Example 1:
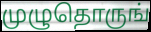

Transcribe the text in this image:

முழுதொருங்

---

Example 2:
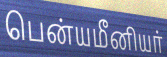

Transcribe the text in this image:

பென்யமீனியர்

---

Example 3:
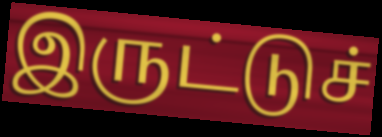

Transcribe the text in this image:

இருட்டுச்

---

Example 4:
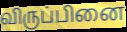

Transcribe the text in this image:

விருப்பினை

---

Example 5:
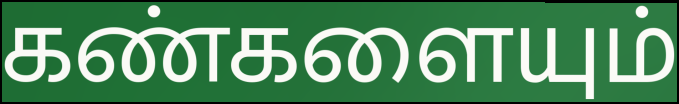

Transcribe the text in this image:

கண்களையும்